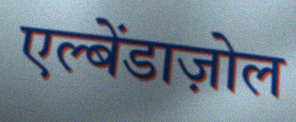
एल्बेंडाज़ोल